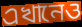
এখানেও